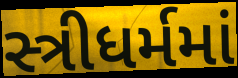
સ્ત્રીધર્મમાં